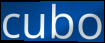
cubo